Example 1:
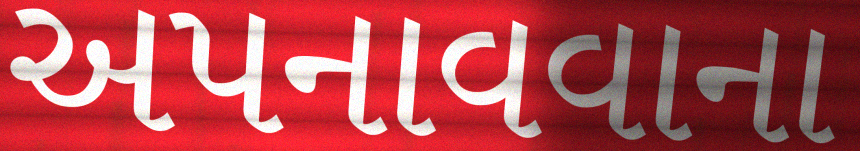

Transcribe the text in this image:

અપનાવવાના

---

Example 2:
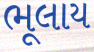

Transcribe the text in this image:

ભૂલાય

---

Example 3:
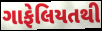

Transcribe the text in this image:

ગાફેલિયતથી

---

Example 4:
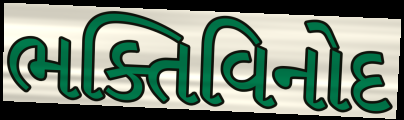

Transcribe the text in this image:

ભક્તિવિનોદ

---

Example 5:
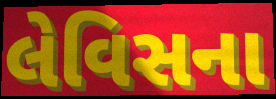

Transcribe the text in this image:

લેવિસના